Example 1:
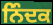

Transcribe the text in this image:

ਨਿੰਦਕ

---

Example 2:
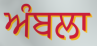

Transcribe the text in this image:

ਅੰਬਲਾ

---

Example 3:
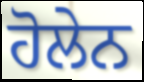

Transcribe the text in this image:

ਹੋਲੇਨ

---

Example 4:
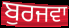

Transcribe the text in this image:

ਬੁਰਜਵਾ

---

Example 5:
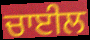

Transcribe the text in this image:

ਚਾਈਲ